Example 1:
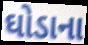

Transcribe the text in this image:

ઘોડાના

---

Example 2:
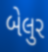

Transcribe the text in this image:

બેલુર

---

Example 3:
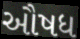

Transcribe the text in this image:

ઔષધ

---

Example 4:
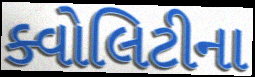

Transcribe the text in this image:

ક્વોલિટીના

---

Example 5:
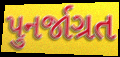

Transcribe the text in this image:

પુનર્જાગ્રત